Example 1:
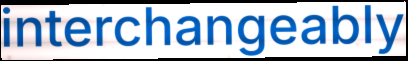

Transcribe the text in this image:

interchangeably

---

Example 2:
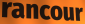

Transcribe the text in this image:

rancour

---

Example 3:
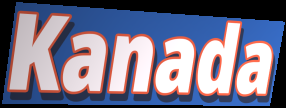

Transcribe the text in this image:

Kanada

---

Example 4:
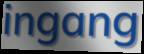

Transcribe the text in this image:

ingang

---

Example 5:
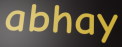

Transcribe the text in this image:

abhay